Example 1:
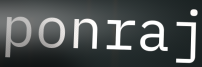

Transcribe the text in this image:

ponraj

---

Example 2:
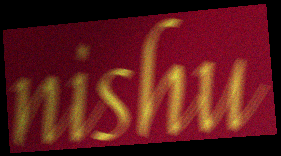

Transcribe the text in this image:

nishu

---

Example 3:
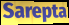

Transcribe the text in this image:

Sarepta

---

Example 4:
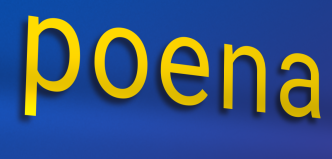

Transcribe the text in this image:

poena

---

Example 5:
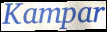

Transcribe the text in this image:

Kampar